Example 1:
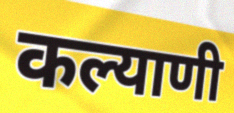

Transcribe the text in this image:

कल्याणी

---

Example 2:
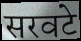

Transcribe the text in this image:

सरवटे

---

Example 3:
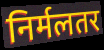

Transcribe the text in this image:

निर्मलतर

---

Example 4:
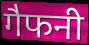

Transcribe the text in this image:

गैफनी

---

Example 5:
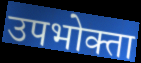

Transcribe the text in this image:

उपभोक्‍ता